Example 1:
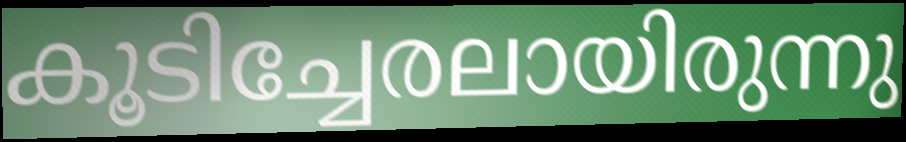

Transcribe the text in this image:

കൂടിച്ചേരലായിരുന്നു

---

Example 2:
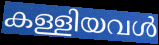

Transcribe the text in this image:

കള്ളിയവൾ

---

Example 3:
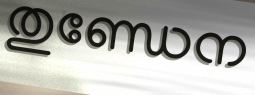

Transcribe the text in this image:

തുണ്ഡേന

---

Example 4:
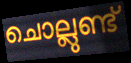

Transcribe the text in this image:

ചൊല്ലുണ്ട്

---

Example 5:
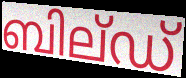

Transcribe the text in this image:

ബില്ഡ്